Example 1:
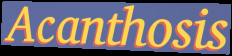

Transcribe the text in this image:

Acanthosis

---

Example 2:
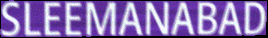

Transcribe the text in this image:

SLEEMANABAD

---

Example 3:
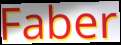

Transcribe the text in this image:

Faber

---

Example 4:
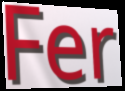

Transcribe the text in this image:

Fer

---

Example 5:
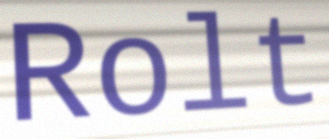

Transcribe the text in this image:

Rolt